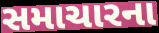
સમાચારના